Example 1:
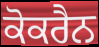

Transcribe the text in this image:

ਕੋਕਰੈਨ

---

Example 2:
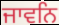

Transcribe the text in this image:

ਜਾਵਨਿ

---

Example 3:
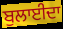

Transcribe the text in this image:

ਬੁਲਾਈਦਾ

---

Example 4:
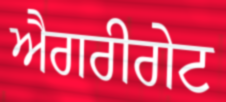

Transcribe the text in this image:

ਐਗਰੀਗੇਟ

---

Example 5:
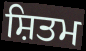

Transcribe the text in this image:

ਸ਼ਿਤਮ